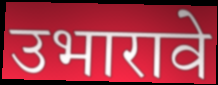
उभारावे